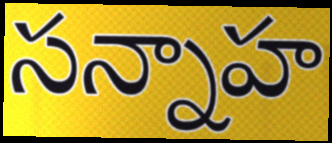
సన్నాహ